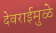
देवराईमुळे